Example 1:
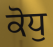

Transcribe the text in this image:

ਕੋਧੁ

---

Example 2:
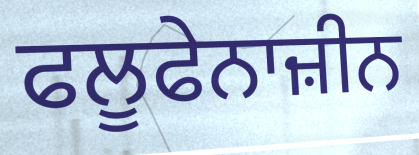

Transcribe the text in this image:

ਫਲੂਫੇਨਾਜ਼ੀਨ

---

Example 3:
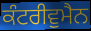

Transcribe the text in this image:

ਕੰਟਰੀਵੁਮੈਨ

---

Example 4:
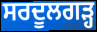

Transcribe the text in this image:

ਸਰਦੂਲਗੜ੍ਹ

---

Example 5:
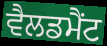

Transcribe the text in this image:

ਵੈਲਡਮੈਂਟ